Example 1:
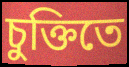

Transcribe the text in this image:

চুক্তিতে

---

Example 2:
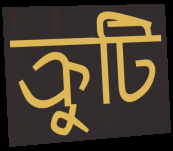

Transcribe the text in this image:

ক্ৰুটি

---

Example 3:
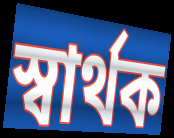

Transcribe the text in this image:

স্বাৰ্থক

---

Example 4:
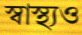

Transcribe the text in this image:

স্বাস্থ্যও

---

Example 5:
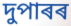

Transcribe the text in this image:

দুপাৰৰ